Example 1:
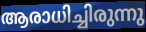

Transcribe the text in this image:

ആരാധിച്ചിരുന്നു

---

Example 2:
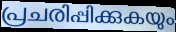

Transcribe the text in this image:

പ്രചരിപ്പിക്കുകയും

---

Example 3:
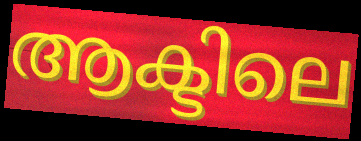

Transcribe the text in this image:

ആക്ടിലെ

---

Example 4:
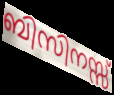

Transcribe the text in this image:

ബിസിനസ്സ്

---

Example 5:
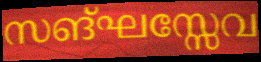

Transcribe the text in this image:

സങ്ഘസ്സേവ